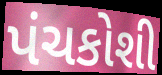
પંચકોશી